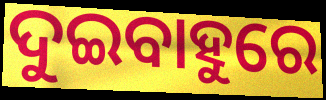
ଦୁଇବାହୁରେ